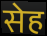
सेह